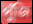
পুঁজি